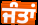
ਜੰਤਾਂ